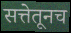
सत्तेतूनच